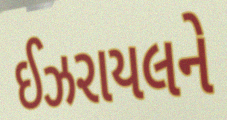
ઈઝરાયલને